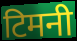
टिमनी